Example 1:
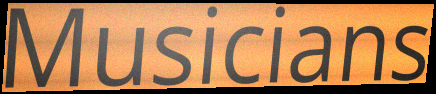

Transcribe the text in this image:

Musicians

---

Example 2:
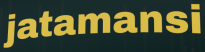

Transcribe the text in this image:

jatamansi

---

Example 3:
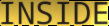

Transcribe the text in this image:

INSIDE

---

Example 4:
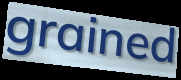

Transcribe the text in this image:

grained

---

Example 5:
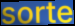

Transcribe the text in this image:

sorte